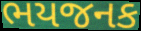
ભયજનક